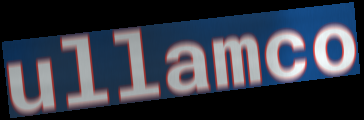
ullamco